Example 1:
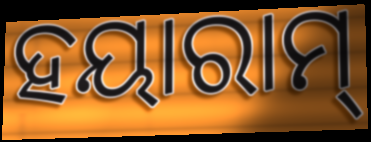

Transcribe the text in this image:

ହୟାରାମ୍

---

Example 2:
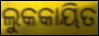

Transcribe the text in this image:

ଲୁକକାୟିତ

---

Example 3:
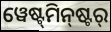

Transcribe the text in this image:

ୱେଷ୍ଟ୍‌ମିନ୍‌ଷ୍ଟର୍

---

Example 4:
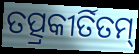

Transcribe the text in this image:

ତତ୍ପ୍ରକୀର୍ତିତମ୍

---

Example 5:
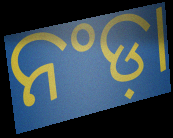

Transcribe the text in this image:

ନଂଡ଼ା